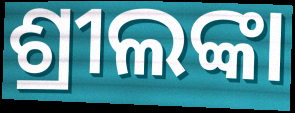
ଶ୍ରୀଲଙ୍କା